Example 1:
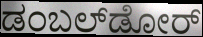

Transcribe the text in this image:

ಡಂಬಲ್‌ಡೋರ್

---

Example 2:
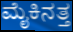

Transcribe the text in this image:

ಮೈಕಿನತ್ತ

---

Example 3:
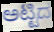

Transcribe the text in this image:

ಅಟ್ಟಿದ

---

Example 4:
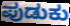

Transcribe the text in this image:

ಪುಡುಕು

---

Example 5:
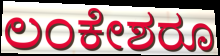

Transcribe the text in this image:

ಲಂಕೇಶರೂ